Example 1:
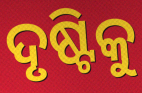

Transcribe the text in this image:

ଦୃଷ୍ଟିକୁ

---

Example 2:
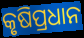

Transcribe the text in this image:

କୃଷିପ୍ରଧାନ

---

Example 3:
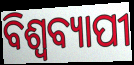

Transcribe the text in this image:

ବିଶ୍ଵବ୍ୟାପୀ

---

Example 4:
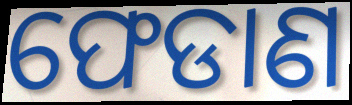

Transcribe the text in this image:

ଫେଡାଣ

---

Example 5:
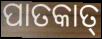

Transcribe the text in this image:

ପାତକାତ୍